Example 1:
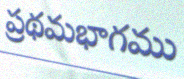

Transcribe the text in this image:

ప్రథమభాగము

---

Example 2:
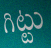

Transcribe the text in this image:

గిట్టు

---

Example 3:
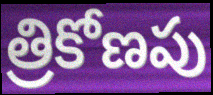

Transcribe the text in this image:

త్రికోణపు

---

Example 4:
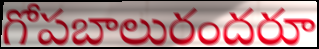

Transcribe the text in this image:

గోపబాలురందరూ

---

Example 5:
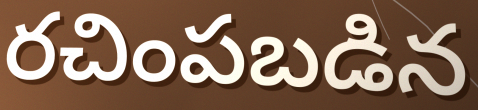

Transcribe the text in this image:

రచింపబడిన